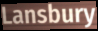
Lansbury